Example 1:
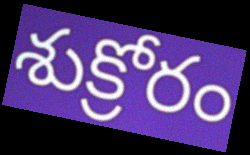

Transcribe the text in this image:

శుక్రోరం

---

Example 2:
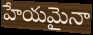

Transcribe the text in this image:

హేయమైనా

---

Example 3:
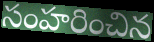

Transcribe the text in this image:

సంహరించిన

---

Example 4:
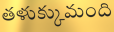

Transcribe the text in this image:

తళుక్కుమంది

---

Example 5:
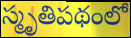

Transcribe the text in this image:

స్మృతిపథంలో